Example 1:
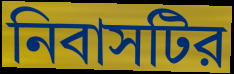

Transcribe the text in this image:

নিবাসটির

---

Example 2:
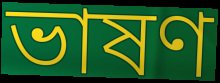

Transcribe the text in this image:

ভাষণ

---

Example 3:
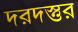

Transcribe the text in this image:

দরদস্তুর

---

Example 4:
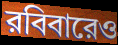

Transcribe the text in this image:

রবিবারেও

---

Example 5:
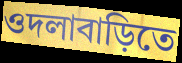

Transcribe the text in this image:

ওদলাবাড়িতে